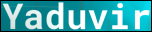
Yaduvir